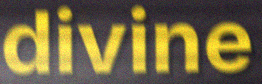
divine